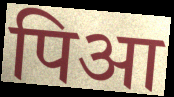
पिआ